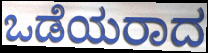
ಒಡೆಯರಾದ